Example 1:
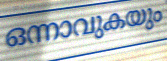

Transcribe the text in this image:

ഒന്നാവുകയും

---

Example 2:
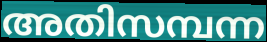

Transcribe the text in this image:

അതിസമ്പന്ന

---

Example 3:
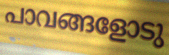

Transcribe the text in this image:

പാവങ്ങളോടു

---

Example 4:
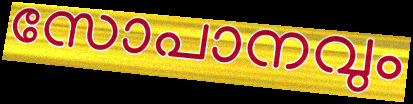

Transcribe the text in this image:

സോപാനവും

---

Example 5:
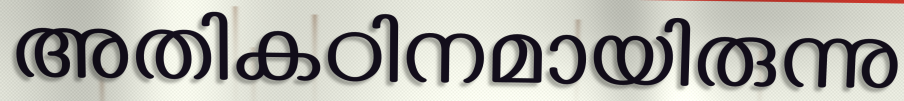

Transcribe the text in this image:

അതികഠിനമായിരുന്നു